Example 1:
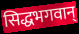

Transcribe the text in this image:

सिद्धभगवान्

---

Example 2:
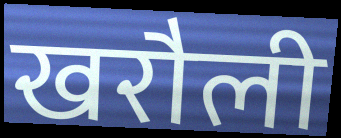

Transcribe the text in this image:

खरौली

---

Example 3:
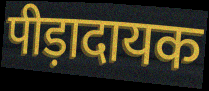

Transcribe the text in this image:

पीड़ादायक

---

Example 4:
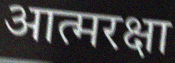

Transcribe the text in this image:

आत्मरक्षा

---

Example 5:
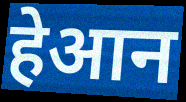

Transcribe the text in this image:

हेआन